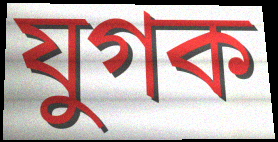
যুগক